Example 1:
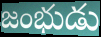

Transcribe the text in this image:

జంభుడు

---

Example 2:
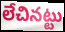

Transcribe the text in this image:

లేచినట్టు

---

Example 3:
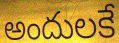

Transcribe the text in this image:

అందులకే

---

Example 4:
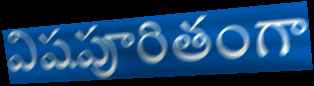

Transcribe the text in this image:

విషపూరితంగా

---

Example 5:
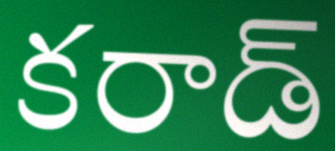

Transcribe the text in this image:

కరాడ్